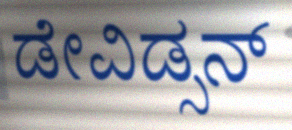
ಡೇವಿಡ್ಸನ್